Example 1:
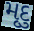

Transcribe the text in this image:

મૃદુ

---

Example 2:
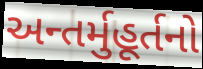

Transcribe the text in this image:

અન્તર્મુહૂર્તનો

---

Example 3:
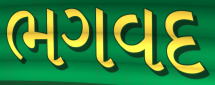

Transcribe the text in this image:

ભગવદ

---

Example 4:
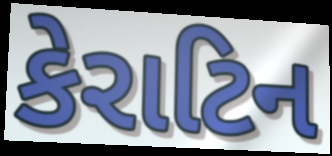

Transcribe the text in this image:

કેરાટિન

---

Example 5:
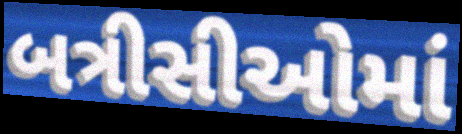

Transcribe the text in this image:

બત્રીસીઓમાં